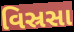
વિસ્રસા